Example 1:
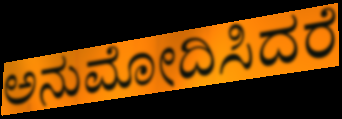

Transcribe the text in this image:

ಅನುಮೋದಿಸಿದರೆ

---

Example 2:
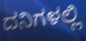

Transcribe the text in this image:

ದನಿಗಳಲ್ಲಿ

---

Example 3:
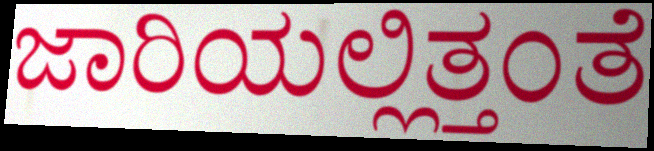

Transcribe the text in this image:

ಜಾರಿಯಲ್ಲಿತ್ತಂತೆ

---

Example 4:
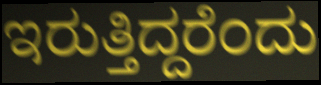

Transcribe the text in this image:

ಇರುತ್ತಿದ್ದರೆಂದು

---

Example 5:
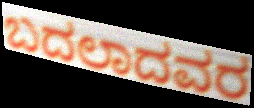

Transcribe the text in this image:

ಬದಲಾದವರ